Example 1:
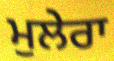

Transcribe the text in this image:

ਮੁਲੇਰਾ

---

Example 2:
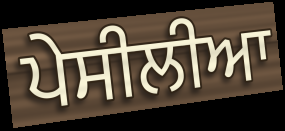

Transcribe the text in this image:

ਪੇਸੀਲੀਆ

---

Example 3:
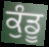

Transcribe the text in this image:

ਕੁੰਡੂ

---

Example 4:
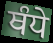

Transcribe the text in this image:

ਥੰਧੇ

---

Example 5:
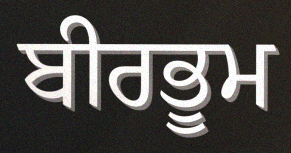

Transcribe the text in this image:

ਬੀਰਭੂਮ